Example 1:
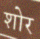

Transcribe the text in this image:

शोर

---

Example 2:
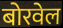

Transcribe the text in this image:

बोरवेल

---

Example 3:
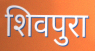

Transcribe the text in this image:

शिवपुरा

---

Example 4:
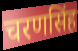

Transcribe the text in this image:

चरणसिंह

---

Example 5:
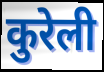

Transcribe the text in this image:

कुरेली